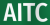
AITC